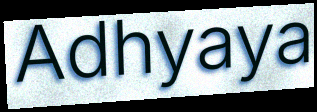
Adhyaya